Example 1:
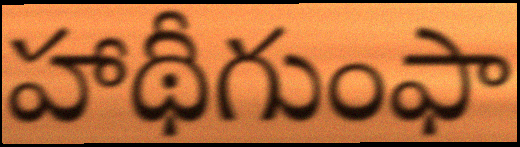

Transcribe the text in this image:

హాథీగుంఫా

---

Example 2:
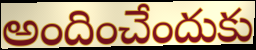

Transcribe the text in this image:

అందించేందుకు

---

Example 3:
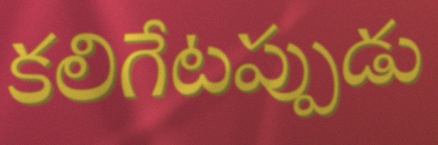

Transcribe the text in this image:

కలిగేటప్పుడు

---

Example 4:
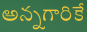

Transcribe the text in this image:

అన్నగారికే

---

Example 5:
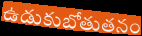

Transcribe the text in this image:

ఉడుకుబోతుతనం